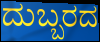
ದುಬ್ಬರದ